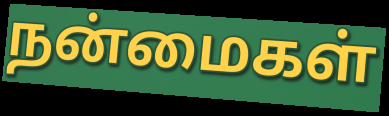
நன்மைகள்